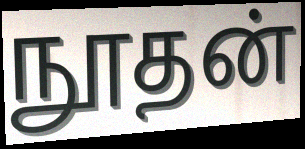
நூதன்